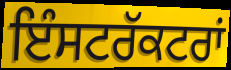
ਇੰਸਟਰੱਕਟਰਾਂ